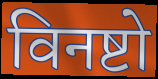
विनष्टो